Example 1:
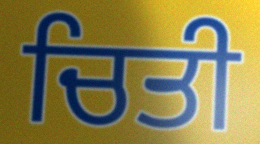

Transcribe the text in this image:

ਚਿਤੀ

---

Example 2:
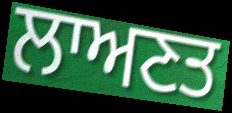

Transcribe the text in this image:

ਲਾਅਣਤ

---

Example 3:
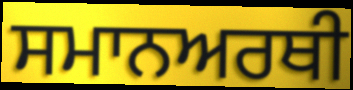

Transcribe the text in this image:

ਸਮਾਨਅਰਥੀ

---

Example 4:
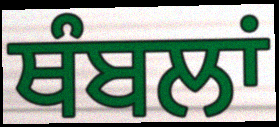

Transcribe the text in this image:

ਥੰਬਲਾਂ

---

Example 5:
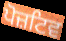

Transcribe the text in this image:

ਪੋਜ਼ਟਿਵ